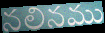
నలినము